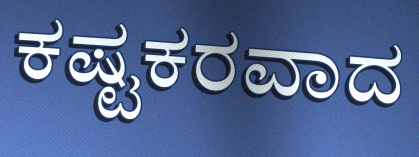
ಕಷ್ಟಕರವಾದ